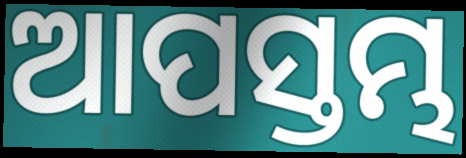
ଆପସ୍ତମ୍ଭ